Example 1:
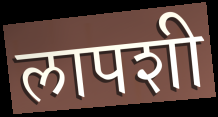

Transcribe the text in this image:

लापशी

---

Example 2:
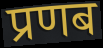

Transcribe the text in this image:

प्रणब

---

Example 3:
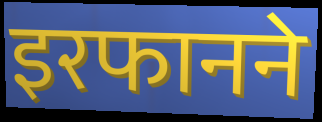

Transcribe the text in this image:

इरफानने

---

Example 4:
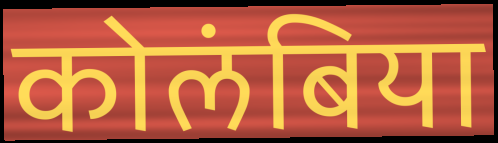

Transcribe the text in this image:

कोलंबिया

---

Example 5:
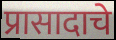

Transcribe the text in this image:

प्रासादाचे